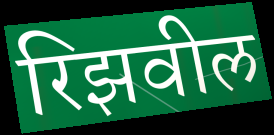
रिझवील